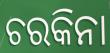
ଚରକିନା